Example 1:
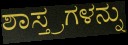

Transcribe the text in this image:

ಶಾಸ್ತ್ರಗಳನ್ನು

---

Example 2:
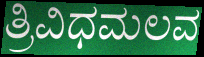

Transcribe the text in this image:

ತ್ರಿವಿಧಮಲವ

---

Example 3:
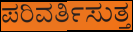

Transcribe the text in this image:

ಪರಿವರ್ತಿಸುತ್ತ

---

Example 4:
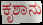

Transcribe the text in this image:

ಕೃಶಾನು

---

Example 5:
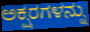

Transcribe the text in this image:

ಅಕ್ಷರಗಳನ್ನು